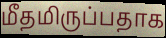
மீதமிருப்பதாக